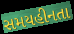
સમયહીનતા